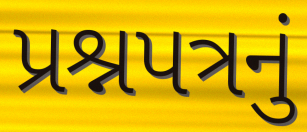
પ્રશ્નપત્રનું